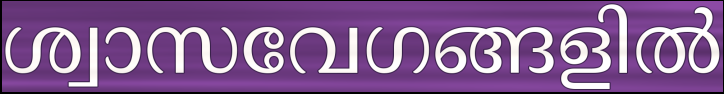
ശ്വാസവേഗങ്ങളിൽ